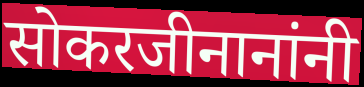
सोकरजीनानांनी